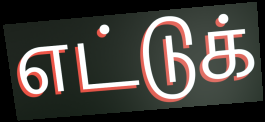
எட்டுக்